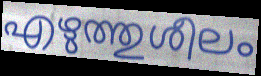
എഴുത്തുശീലം